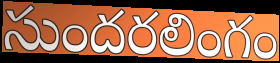
సుందరలింగం